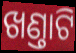
ଖଣ୍ତାଟି